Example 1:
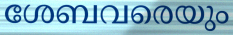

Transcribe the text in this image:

ശേബവരെയും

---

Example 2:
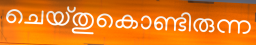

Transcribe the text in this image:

ചെയ്തുകൊണ്ടിരുന്ന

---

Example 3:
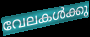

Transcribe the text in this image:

വേലകൾക്കു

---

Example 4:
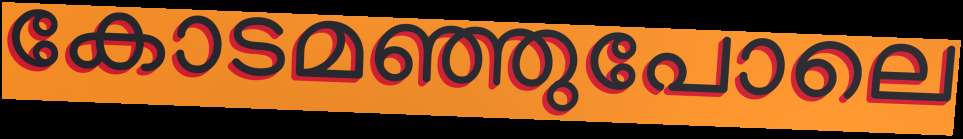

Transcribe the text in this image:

കോടമഞ്ഞുപോലെ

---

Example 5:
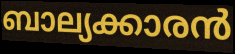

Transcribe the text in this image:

ബാല്യക്കാരൻ